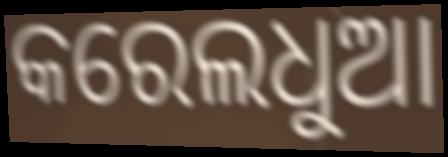
କରେଲଧୁଆ